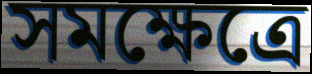
সমক্ষেত্রে